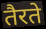
तैरते